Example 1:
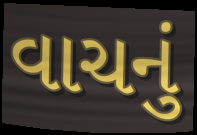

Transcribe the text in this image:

વાચનું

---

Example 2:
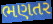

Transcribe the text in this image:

ભણતર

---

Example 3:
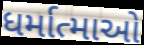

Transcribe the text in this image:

ધર્માત્માઓ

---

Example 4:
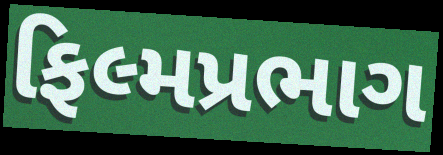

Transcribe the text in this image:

ફિલ્મપ્રભાગ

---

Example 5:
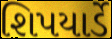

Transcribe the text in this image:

શિપયાર્ડે